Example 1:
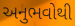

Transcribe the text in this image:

અનુભવોથી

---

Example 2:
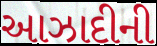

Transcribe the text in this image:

આઝાદીની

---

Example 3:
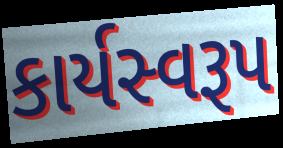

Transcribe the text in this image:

કાર્યસ્વરૂપ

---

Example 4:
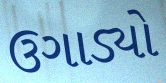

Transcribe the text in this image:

ઉગાડ્યો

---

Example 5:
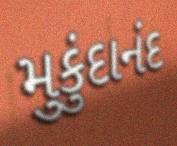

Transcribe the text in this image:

મુકુંદાનંદ